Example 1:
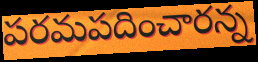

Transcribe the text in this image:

పరమపదించారన్న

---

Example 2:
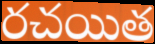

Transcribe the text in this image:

రచయిత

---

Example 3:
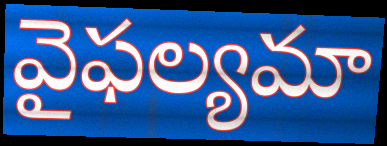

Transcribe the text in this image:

వైఫల్యమా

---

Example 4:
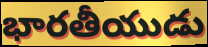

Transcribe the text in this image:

భారతీయుడు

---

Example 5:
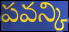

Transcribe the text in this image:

పవన్కి